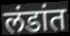
लंडांत